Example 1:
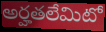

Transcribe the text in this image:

అర్హతలేమిటో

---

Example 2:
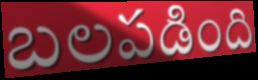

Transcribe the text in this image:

బలపడింది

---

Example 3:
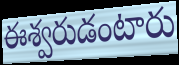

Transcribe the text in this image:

ఈశ్వరుడంటారు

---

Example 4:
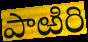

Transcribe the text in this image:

పాఱిరి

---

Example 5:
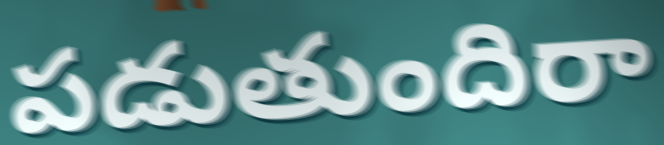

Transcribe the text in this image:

పడుతుందిరా